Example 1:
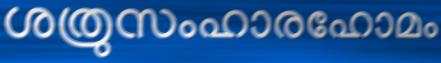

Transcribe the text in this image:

ശത്രുസംഹാരഹോമം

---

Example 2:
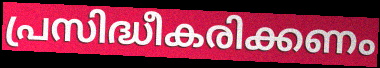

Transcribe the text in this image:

പ്രസിദ്ധീകരിക്കണം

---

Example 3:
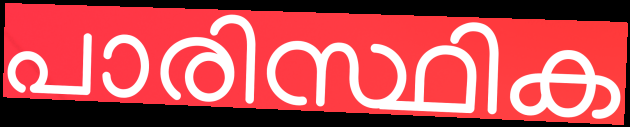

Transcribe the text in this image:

പാരിസ്ഥിക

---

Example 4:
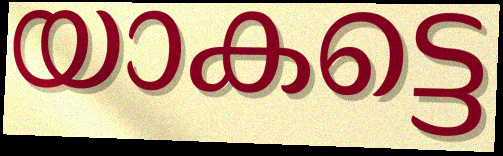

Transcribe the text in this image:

യാകട്ടെ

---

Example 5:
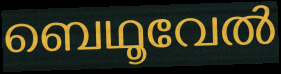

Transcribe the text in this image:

ബെഥൂവേൽ